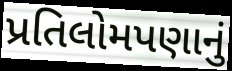
પ્રતિલોમપણાનું